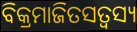
ବିକ୍ରମାଜିତସତ୍ଵସ୍ୟ